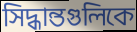
সিদ্ধান্তগুলিকে